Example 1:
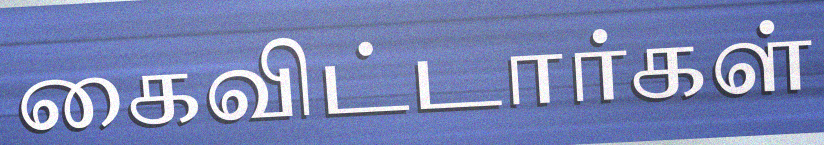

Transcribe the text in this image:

கைவிட்டார்கள்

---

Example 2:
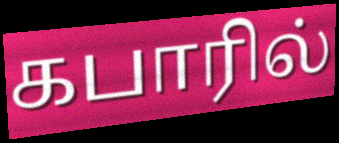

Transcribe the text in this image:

கபாரில்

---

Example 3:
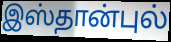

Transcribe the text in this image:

இஸ்தான்புல்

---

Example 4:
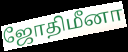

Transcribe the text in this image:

ஜோதிமீனா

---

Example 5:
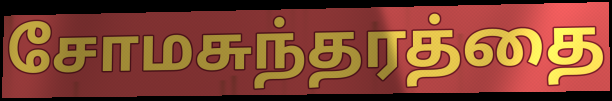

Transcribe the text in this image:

சோமசுந்தரத்தை